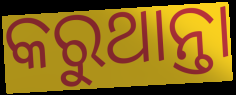
କରୁଥାନ୍ତା